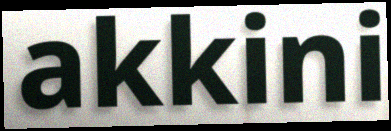
akkini